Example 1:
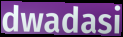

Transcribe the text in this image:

dwadasi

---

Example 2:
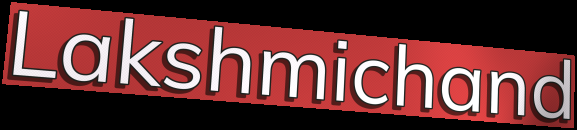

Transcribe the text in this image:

Lakshmichand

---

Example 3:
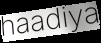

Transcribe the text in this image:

haadiya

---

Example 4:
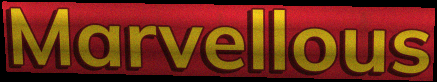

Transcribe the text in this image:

Marvellous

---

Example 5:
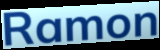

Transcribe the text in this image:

Ramon